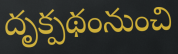
దృక్పథంనుంచి